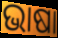
ଭାଷା